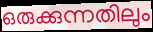
ഒരുക്കുന്നതിലും